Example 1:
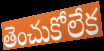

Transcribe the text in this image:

తెంచుకోలేక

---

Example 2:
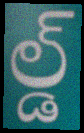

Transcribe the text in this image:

ల్డ్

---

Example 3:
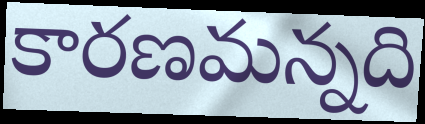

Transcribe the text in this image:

కారణమన్నది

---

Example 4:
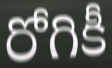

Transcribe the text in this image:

రోగికీ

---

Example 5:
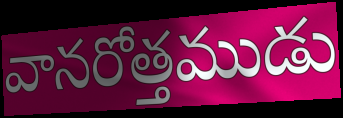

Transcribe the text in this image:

వానరోత్తముడు